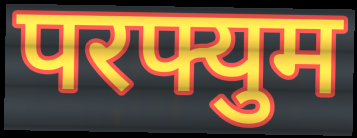
परफ्युम